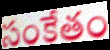
సంకేతం